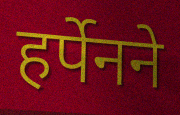
हर्पेनने